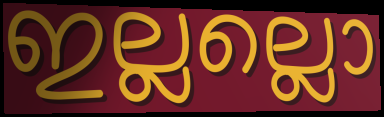
ഇല്ലല്ലൊ